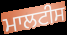
ਮਾਲਟੀਸ